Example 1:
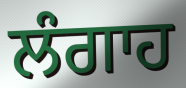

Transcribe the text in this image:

ਲੰਗਾਹ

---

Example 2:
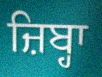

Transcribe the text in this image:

ਜ਼ਿਬ੍ਹਾ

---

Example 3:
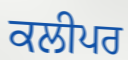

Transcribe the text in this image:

ਕਲੀਪਰ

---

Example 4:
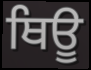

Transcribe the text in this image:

ਥਿਊ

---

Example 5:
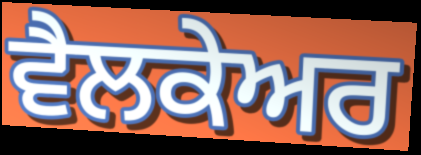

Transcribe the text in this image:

ਵੈਲਕੇਅਰ